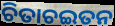
ଚିତାଚଇତନ